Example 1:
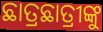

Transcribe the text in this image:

ଛାତ୍ରଛାତ୍ରୀଙ୍କୁ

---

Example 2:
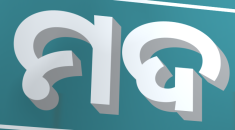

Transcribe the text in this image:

ମଦ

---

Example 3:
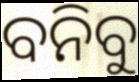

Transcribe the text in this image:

ବନିବୁ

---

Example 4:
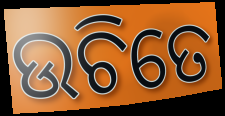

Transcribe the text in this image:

ଉଚିତେ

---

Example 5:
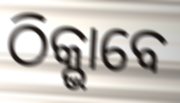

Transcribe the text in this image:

ଠିକ୍ଭାବେ